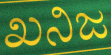
ಖನಿಜ